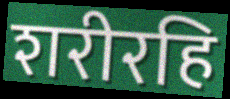
शरीरहि